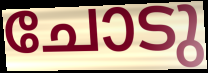
ചോടു